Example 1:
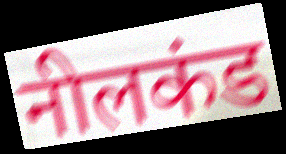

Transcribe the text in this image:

नीलकंड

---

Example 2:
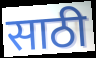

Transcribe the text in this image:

साठी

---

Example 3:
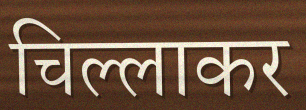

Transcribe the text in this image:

चिल्‍लाकर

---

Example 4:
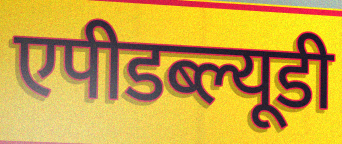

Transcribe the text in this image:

एपीडब्ल्यूडी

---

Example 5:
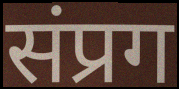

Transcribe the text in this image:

संप्रग